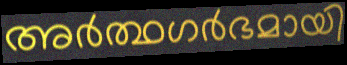
അർത്ഥഗർഭമായി